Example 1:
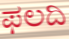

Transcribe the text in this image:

ಫಲದಿ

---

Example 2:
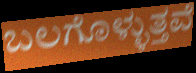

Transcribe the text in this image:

ಬಲಗೊಳ್ಳುತ್ತವೆ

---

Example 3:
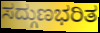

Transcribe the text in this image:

ಸದ್ಗುಣಭರಿತ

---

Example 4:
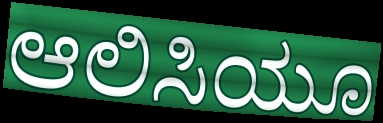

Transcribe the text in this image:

ಆಲಿಸಿಯೂ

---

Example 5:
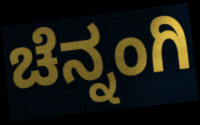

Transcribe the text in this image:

ಚೆನ್ನಂಗಿ